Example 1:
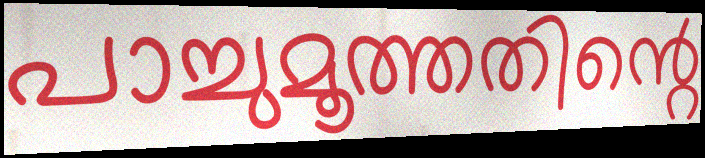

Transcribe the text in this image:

പാച്ചുമൂത്തതിന്റെ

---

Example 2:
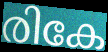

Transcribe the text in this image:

രികേ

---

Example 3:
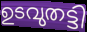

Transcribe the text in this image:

ഉടവുതട്ടി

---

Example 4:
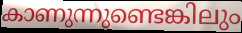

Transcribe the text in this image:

കാണുന്നുണ്ടെങ്കിലും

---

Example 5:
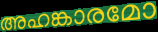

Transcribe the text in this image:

അഹങ്കാരമോ